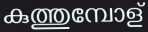
കുത്തുമ്പോള്